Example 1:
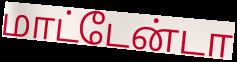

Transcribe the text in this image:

மாட்டேன்டா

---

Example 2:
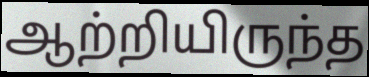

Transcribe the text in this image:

ஆற்றியிருந்த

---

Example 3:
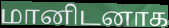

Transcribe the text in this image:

மானிடனாக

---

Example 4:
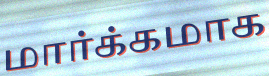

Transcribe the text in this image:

மார்க்கமாக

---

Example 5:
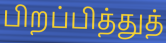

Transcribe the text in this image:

பிறப்பித்துத்